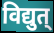
विद्युत्